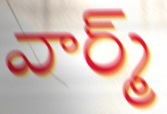
వార్మ్